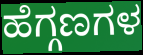
ಹೆಗ್ಗಣಗಳ